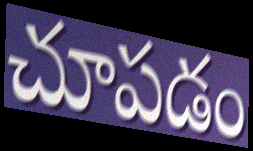
చూపడం